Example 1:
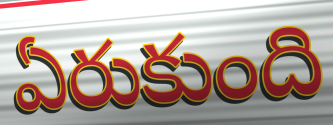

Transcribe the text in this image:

ఏరుకుంది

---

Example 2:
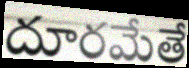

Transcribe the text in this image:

దూరమేతే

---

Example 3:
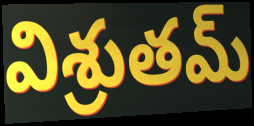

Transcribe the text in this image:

విశ్రుతమ్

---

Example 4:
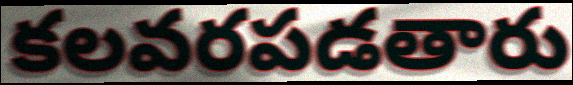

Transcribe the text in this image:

కలవరపడతారు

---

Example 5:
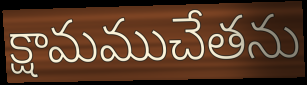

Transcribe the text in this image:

క్షామముచేతను